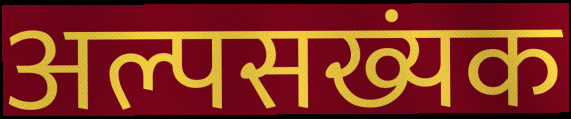
अल्पसख्यंक